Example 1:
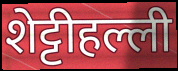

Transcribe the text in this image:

शेट्टीहल्ली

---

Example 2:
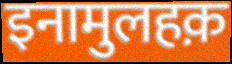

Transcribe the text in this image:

इनामुलहक़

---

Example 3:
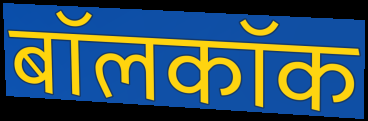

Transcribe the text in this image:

बॉलकॉक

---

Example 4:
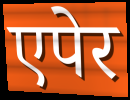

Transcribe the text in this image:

एपेर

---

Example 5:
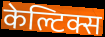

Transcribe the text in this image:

केल्टिक्स